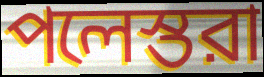
পলেস্তরা